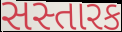
સસ્તારક